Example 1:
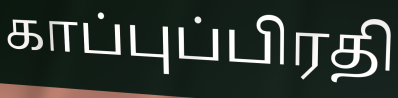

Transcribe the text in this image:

காப்புப்பிரதி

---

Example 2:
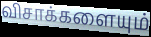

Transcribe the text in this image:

விசாக்களையும்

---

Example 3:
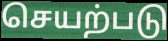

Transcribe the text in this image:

செயற்படு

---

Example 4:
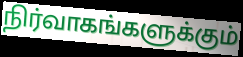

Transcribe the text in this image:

நிர்வாகங்களுக்கும்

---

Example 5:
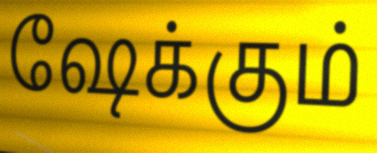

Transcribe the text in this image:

ஷேக்கும்